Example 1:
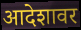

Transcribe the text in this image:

आदेशावर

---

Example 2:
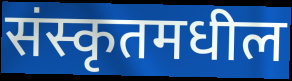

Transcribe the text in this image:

संस्कृतमधील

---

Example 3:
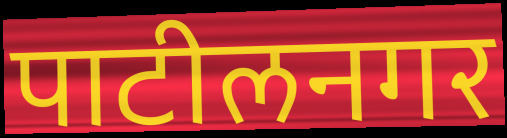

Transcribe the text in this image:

पाटीलनगर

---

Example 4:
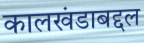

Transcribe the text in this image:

कालखंडाबद्दल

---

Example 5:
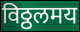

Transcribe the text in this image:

विठ्ठलमय